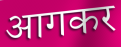
आगकर